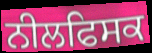
ਨੀਲਫਿਸਕ